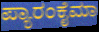
ಪ್ಯಾರಂಕೈಮಾ